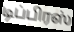
டிப்பிரஸ்